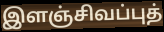
இளஞ்சிவப்புத்